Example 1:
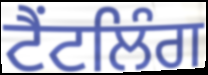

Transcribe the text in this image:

ਟੈਂਟਲਿੰਗ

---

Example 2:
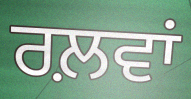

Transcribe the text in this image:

ਰਲ਼ਵਾਂ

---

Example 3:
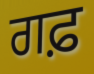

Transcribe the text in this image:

ਗਫ਼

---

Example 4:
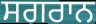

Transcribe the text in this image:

ਸਗਰਾਨ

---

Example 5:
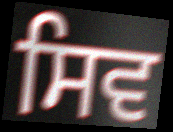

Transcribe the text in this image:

ਸਿਵ